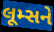
લૂમ્સને